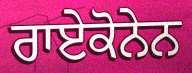
ਰਾਏਕੋਨੇਨ